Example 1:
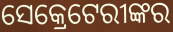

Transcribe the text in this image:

ସେକ୍ରେଟେରୀଙ୍କର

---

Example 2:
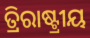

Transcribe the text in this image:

ତ୍ରିରାଷ୍ଟ୍ରୀୟ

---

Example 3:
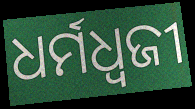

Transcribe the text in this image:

ଧର୍ମଧ୍ୱଜୀ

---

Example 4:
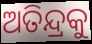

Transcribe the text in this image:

ଅତିନ୍ଦ୍ରକୁ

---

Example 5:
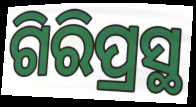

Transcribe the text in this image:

ଗିରିପ୍ରସ୍ଥ